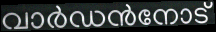
വാർഡൻനോട്